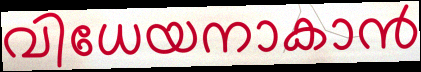
വിധേയനാകാൻ